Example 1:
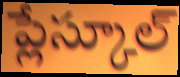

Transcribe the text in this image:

ప్లేస్కూల్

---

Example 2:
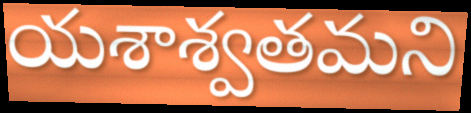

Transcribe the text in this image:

యశాశ్వతమని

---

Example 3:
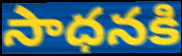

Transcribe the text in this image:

సాధనకి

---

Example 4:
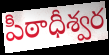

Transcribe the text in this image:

పీఠాధీశ్వర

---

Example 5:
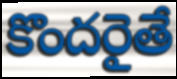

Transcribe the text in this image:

కొందరైతే